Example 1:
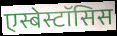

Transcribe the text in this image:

एस्बेस्टॉसिस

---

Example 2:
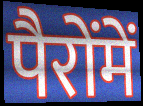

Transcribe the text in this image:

पैरोंमें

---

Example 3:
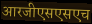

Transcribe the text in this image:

आरजीएसएसएच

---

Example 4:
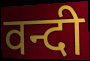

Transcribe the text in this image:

वन्दी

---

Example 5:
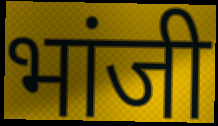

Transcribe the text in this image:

भांजी